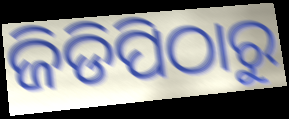
ଜିଡିପିଠାରୁ